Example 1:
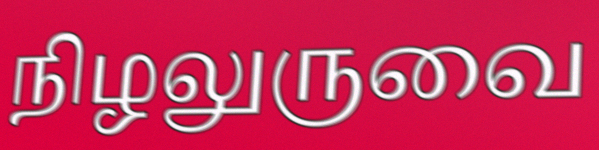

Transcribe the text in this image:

நிழலுருவை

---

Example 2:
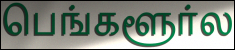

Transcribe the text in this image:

பெங்களூர்ல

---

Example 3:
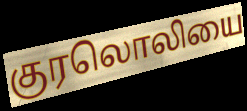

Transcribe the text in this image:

குரலொலியை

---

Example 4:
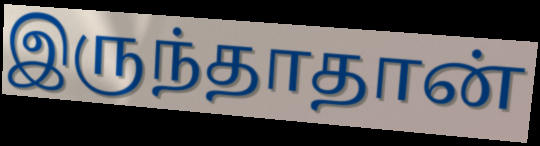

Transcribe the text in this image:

இருந்தாதான்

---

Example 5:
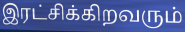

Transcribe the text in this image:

இரட்சிக்கிறவரும்